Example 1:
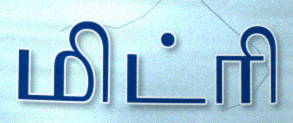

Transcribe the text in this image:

மிட்ரி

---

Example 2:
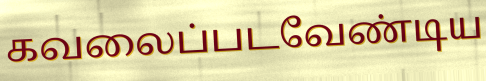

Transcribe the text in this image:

கவலைப்படவேண்டிய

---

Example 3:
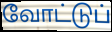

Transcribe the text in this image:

வோட்டுப்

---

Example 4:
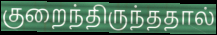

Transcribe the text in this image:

குறைந்திருந்ததால்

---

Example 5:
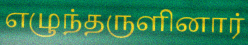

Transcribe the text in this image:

எழுந்தருளினார்